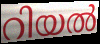
റിയൽ